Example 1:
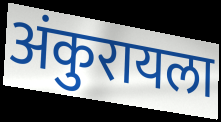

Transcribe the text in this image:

अंकुरायला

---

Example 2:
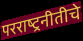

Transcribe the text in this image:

परराष्ट्रनीतीचे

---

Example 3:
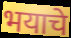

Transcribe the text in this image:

भयाचे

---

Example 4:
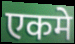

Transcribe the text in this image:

एकमे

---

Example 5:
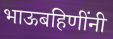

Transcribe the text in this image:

भाऊबहिणींनी